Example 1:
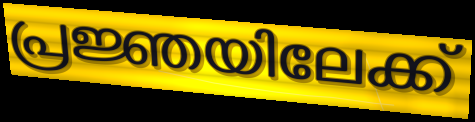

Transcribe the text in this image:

പ്രജ്ഞയിലേക്ക്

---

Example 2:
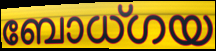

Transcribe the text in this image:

ബോധ്ഗയ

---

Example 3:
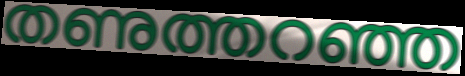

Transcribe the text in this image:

തണുത്തറഞ്ഞ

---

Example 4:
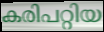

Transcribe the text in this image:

കരിപറ്റിയ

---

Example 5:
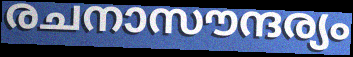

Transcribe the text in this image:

രചനാസൗന്ദര്യം